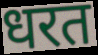
धरत